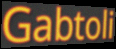
Gabtoli